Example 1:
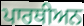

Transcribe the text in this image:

ਪਾਰਥੀਅਨ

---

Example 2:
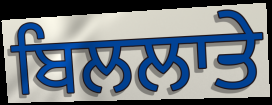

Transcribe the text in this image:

ਬਿਲਲਾਤੇ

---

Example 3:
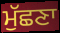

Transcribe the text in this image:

ਮੁੱਛਣਾ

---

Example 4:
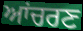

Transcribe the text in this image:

ਆਂਚਰਣ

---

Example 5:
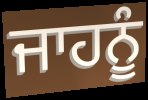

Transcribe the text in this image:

ਜਾਹਨੂੰ